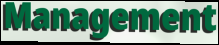
Management